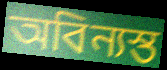
অবিন্যস্ত